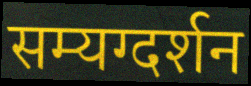
सम्यग्दर्शन